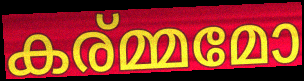
കര്മ്മമോ